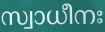
സ്വാധീനഃ